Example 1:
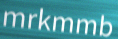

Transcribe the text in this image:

mrkmmb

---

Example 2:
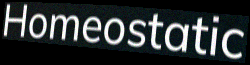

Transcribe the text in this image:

Homeostatic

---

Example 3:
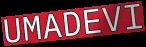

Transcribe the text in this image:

UMADEVI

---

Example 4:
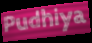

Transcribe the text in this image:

Pudhiya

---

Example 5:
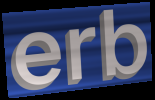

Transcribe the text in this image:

erb